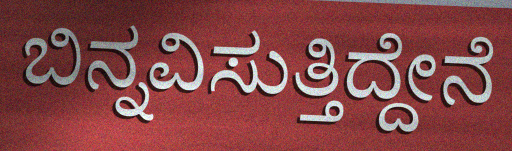
ಬಿನ್ನವಿಸುತ್ತಿದ್ದೇನೆ